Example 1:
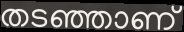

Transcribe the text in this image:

തടഞ്ഞാണ്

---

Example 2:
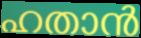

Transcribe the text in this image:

ഹതാൻ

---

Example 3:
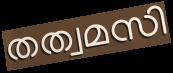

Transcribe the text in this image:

തത്വമസി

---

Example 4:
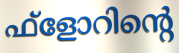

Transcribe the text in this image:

ഫ്ളോറിന്റെ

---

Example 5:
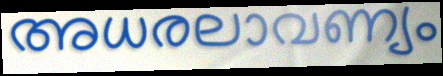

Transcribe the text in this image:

അധരലാവണ്യം